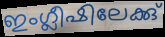
ഇംഗ്ലീഷിലേക്കു്